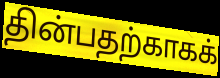
தின்பதற்காகக்